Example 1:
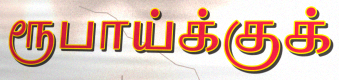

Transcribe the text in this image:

ரூபாய்க்குக்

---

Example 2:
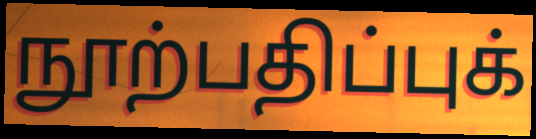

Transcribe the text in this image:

நூற்பதிப்புக்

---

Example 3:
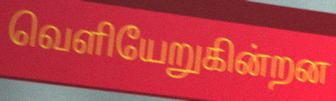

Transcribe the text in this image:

வெளியேறுகின்றன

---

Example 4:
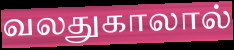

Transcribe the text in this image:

வலதுகாலால்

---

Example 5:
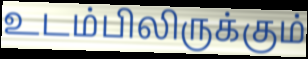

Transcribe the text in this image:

உடம்பிலிருக்கும்